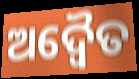
ଅଦ୍ୱୈତ